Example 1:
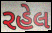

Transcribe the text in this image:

રહેલ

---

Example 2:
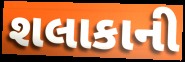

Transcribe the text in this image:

શલાકાની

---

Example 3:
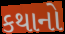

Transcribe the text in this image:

કથાનો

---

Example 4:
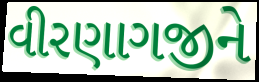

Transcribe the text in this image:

વીરણાગજીને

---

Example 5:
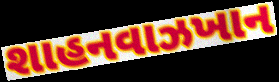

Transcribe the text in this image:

શાહનવાઝખાન